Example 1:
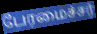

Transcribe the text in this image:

பேரமைச்சர்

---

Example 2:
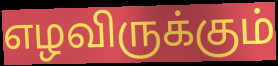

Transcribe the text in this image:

எழவிருக்கும்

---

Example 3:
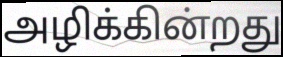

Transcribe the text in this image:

அழிக்கின்றது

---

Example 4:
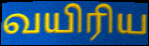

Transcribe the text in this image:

வயிரிய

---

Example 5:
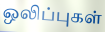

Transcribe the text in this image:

ஒலிப்புகள்